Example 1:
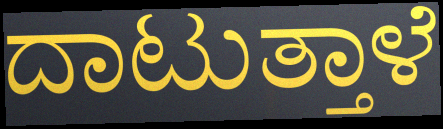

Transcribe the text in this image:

ದಾಟುತ್ತಾಳೆ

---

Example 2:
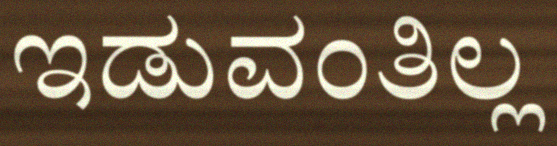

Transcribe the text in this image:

ಇಡುವಂತಿಲ್ಲ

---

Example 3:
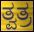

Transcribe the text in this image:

ತ್ವತ್ರ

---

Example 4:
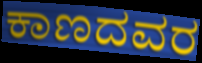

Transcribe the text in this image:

ಕಾಣದವರ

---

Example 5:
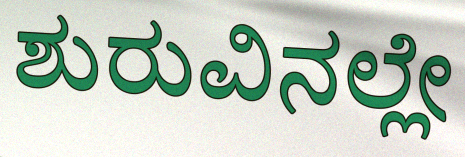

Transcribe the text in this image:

ಶುರುವಿನಲ್ಲೇ